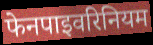
फेनपाइवरिनियम